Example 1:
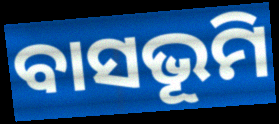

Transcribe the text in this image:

ବାସଭୂମି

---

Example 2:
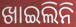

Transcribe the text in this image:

ଖାଇଲିନି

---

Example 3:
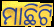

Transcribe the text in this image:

ମାଛିଟି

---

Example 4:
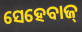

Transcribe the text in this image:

ସେହେବାଜ୍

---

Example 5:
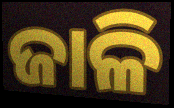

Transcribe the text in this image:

ଜାଳି